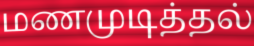
மணமுடித்தல்